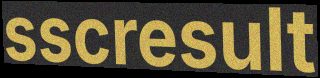
sscresult